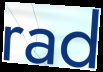
rad